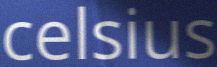
celsius